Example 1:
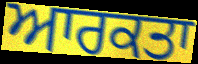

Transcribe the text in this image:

ਆਰਕਤਾ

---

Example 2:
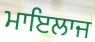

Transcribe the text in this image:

ਮਾਇਲਾਜ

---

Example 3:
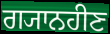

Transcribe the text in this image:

ਗ੍ਯਾਨਹੀਣ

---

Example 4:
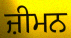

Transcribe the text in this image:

ਜ਼ੀਮਨ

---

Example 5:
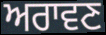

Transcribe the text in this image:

ਅਰਾਵਣ